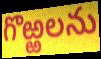
గొఱ్ఱలను